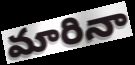
మారినా